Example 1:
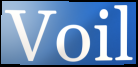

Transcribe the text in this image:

Voil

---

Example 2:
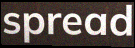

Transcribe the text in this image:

spread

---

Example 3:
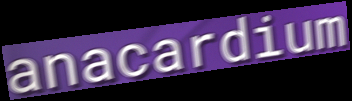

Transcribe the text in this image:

anacardium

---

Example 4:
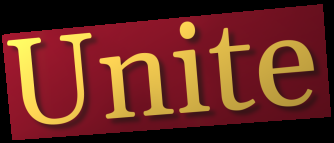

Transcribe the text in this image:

Unite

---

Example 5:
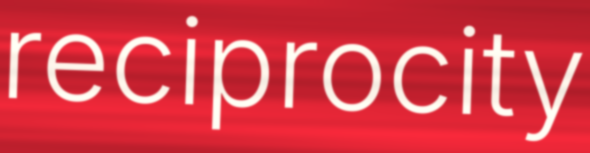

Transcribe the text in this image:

reciprocity